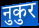
नुकुर